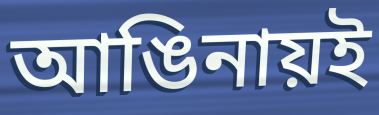
আঙিনায়ই